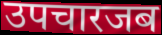
उपचारजब